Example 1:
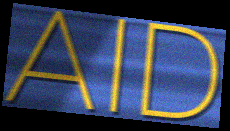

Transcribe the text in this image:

AID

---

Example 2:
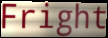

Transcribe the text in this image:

Fright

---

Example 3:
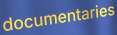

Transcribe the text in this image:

documentaries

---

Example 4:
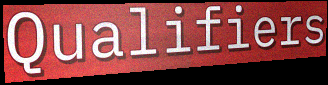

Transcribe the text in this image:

Qualifiers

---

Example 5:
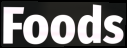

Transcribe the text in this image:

Foods